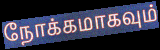
நோக்கமாகவும்